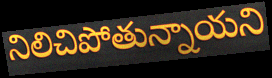
నిలిచిపోతున్నాయని